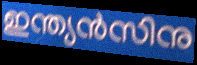
ഇന്ത്യൻസിനു